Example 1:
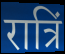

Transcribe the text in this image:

रात्रिं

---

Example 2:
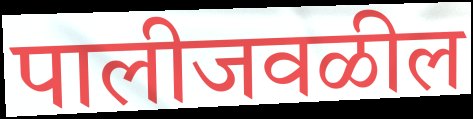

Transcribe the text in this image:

पालीजवळील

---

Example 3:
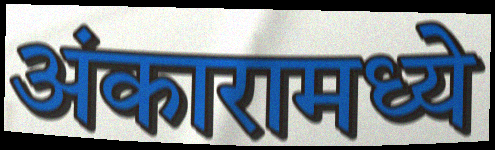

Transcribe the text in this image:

अंकारामध्ये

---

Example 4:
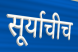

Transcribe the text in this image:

सूर्याचीच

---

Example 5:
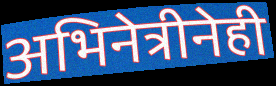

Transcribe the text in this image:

अभिनेत्रीनेही